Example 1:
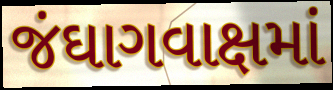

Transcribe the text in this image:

જંઘાગવાક્ષમાં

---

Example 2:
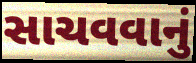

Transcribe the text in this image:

સાચવવાનું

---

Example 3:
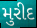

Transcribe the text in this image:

મુરીદ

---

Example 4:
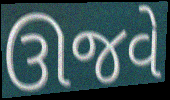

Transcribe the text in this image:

ઊજવે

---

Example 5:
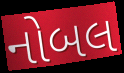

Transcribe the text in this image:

નોબલ